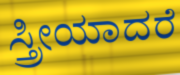
ಸ್ತ್ರೀಯಾದರೆ